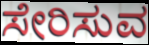
ಸೇರಿಸುವ